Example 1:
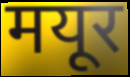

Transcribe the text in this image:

मयूर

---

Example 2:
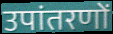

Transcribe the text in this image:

उपांतरणों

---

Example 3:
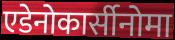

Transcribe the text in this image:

एडेनोकार्सीनोमा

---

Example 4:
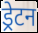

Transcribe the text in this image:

ड्रेटन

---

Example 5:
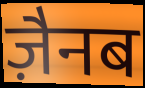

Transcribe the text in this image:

ज़ैनब